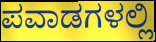
ಪವಾಡಗಳಲ್ಲಿ